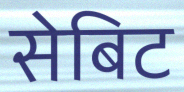
सेबिट